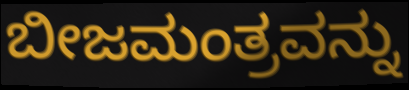
ಬೀಜಮಂತ್ರವನ್ನು